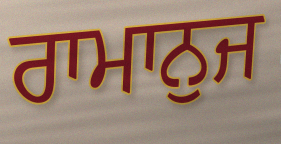
ਰਾਮਾਨੁਜ